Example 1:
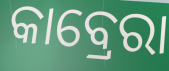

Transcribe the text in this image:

କାବ୍ରେରା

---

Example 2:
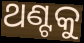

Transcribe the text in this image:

ଥଣ୍ଟକୁ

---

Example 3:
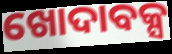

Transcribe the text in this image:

ଖୋଦାବକ୍ସ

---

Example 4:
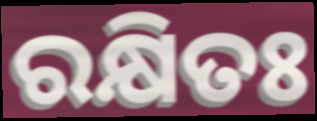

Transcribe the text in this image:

ରକ୍ଷିତଃ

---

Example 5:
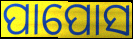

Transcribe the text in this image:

ପାପୋସ